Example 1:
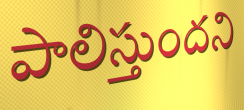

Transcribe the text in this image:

పాలిస్తుందని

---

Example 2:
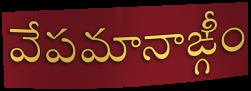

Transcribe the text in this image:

వేపమానాఙ్గీం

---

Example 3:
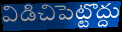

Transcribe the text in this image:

విడిచిపెట్టొద్దు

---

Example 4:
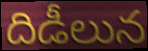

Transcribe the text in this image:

దిడీలున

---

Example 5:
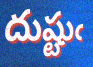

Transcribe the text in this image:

దుష్టుఁ